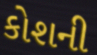
કોશની